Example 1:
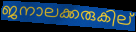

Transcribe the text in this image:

ജനാലക്കരുകില്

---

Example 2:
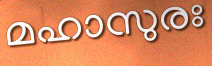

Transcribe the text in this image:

മഹാസുരഃ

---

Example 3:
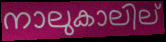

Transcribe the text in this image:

നാലുകാലില്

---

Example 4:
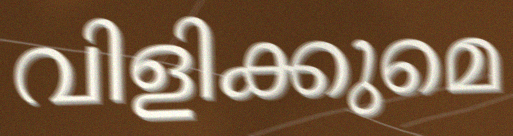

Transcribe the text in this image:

വിളിക്കുമെ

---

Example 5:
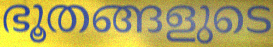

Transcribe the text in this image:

ഭൂതങ്ങളുടെ